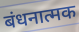
बंधनात्मक